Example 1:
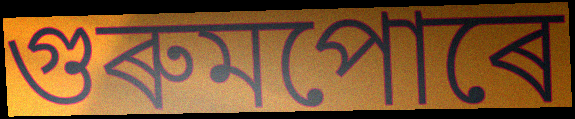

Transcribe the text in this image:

গুৰুমপোৰে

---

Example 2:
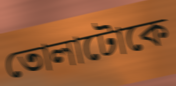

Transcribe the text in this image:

তোলাটোকে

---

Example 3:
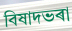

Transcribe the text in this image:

বিষাদভৰা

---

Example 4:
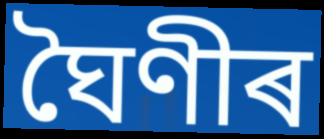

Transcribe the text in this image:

ঘৈণীৰ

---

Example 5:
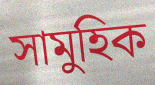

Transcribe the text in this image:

সামুহিক